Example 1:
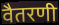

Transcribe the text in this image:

वैतरणी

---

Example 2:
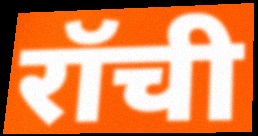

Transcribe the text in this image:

रॉची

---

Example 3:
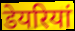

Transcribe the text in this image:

डेयरियां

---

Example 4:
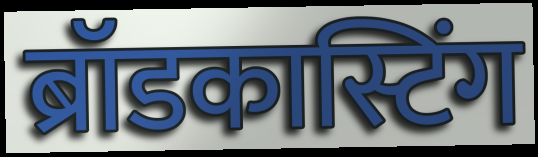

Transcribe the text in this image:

ब्रॉडकास्टिंग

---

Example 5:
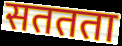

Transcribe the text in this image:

सततता